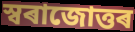
স্বৰাজোত্তৰ